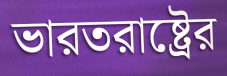
ভারতরাষ্ট্রের